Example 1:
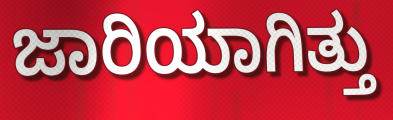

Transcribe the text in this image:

ಜಾರಿಯಾಗಿತ್ತು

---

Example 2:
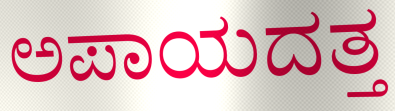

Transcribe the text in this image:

ಅಪಾಯದತ್ತ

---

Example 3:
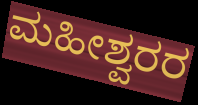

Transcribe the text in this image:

ಮಹೀಶ್ವರರ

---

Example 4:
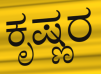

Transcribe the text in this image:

ಕೃಷ್ಣರ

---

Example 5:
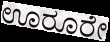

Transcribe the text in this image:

ಊರೂರೇ